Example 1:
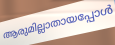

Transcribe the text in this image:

ആരുമില്ലാതായപ്പോൾ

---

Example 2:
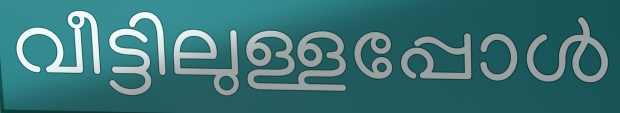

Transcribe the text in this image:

വീട്ടിലുള്ളപ്പോൾ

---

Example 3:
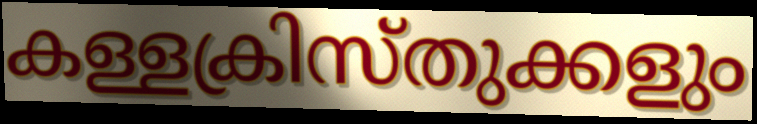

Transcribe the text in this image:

കള്ളക്രിസ്തുക്കളും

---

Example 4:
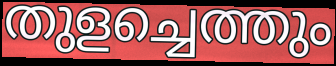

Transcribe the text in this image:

തുളച്ചെത്തും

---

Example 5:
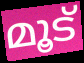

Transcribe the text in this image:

മൂട്